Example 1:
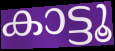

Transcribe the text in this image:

കാട്ടൂ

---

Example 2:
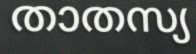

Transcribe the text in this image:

താതസ്യ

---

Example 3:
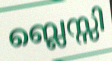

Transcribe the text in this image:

ബ്ലെസ്സി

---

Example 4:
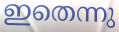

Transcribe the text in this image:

ഇതെന്നു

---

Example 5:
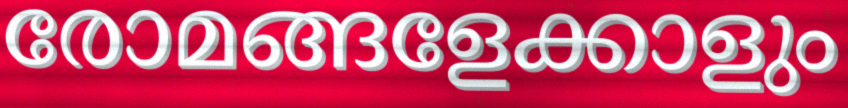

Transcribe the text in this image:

രോമങ്ങളേക്കാളും